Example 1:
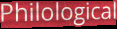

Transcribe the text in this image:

Philological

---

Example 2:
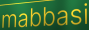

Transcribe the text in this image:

mabbasi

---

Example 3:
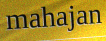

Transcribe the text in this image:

mahajan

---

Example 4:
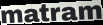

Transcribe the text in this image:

matram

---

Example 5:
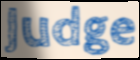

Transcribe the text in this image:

Judge